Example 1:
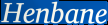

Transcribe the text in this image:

Henbane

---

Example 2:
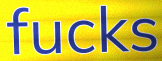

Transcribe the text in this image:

fucks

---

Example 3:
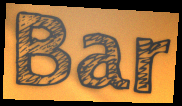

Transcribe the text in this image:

Bar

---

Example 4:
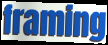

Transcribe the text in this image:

framing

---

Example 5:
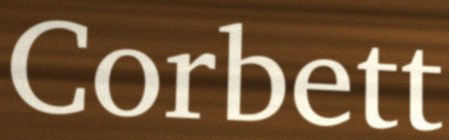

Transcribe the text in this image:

Corbett